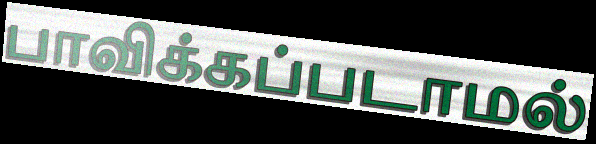
பாவிக்கப்படாமல்